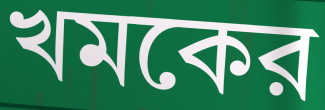
খমকের